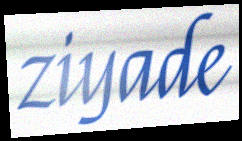
ziyade